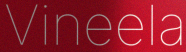
Vineela